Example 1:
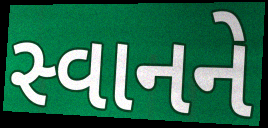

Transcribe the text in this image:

સ્વાનને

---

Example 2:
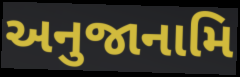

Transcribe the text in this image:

અનુજાનામિ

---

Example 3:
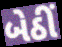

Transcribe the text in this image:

બેઠીં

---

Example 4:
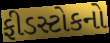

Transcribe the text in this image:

ફીડસ્ટોકનો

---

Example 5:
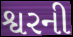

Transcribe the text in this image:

શ્વરની